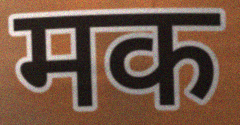
मक